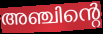
അഞ്ചിന്റെ